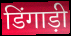
डिंगाड़ी